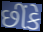
છીંકે